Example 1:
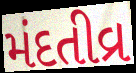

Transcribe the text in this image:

મંદતીવ્ર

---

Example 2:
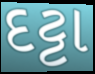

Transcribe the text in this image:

દટ્ટા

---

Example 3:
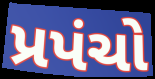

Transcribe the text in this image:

પ્રપંચો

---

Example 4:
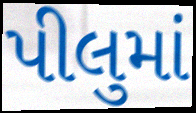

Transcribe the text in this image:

પીલુમાં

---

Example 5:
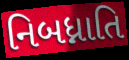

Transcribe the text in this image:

નિબધ્નાતિ